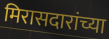
मिरासदारांच्या